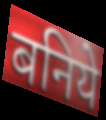
बनिये